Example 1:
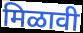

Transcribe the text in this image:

मिळावी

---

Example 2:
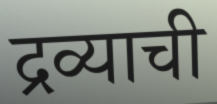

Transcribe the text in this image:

द्रव्याची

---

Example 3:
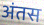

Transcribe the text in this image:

अंतस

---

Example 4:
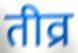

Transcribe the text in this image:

तीव्र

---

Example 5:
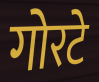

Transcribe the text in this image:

गोरटे